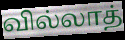
வில்லாத்